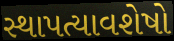
સ્થાપત્યાવશેષો